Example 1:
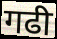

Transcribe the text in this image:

गढी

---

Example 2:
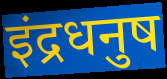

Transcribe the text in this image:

इंद्रधनुष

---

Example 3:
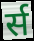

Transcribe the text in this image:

र्स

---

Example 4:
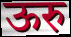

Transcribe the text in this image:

ऊरु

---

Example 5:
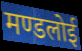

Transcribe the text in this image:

मण्डलोई